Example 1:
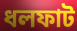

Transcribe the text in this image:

ধলফাট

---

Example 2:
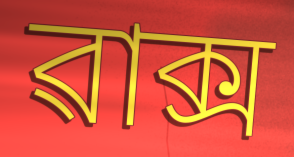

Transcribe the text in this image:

ৱাক্স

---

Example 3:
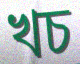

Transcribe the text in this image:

খচ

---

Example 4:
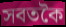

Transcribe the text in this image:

সবতকৈ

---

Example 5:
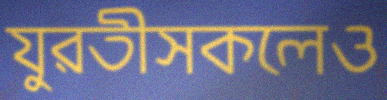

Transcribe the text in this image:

যুৱতীসকলেও